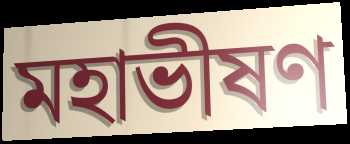
মহাভীষণ